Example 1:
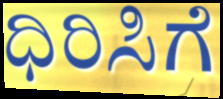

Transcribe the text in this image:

ಧಿರಿಸಿಗೆ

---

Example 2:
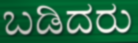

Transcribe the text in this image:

ಬಡಿದರು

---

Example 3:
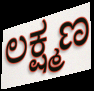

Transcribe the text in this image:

ಲಕ್ಷ್ಮಣ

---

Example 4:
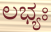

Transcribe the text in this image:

ಲಭ್ಯಃ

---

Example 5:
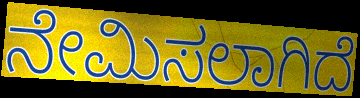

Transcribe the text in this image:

ನೇಮಿಸಲಾಗಿದೆ